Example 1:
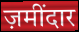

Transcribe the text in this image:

ज़मींदार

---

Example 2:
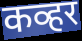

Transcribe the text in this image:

कव्हर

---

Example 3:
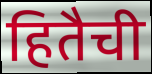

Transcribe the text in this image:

हितैची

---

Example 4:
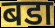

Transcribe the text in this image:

बडा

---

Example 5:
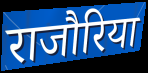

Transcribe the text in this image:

राजौरिया